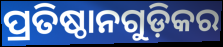
ପ୍ରତିଷ୍ଠାନଗୁଡ଼ିକର